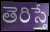
తెరిస్తే